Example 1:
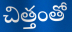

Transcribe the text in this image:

చిత్తంతో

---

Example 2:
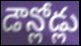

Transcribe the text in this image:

డౌన్లోడ్లు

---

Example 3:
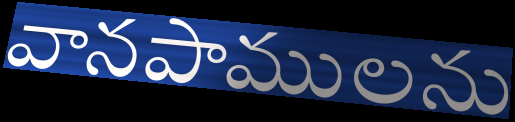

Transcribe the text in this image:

వానపాములను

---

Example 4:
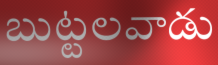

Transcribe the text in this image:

బుట్టలవాడు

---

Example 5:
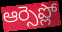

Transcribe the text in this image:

ఆర్సెప్లో